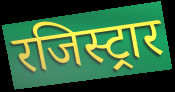
रजिस्ट्रार